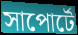
সাপোর্টে